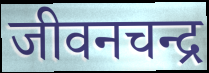
जीवनचन्द्र